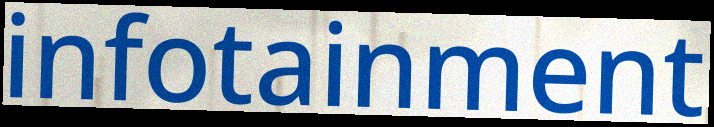
infotainment